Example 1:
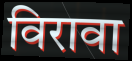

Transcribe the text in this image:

विरावा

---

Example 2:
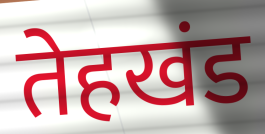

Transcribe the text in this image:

तेहखंड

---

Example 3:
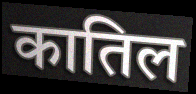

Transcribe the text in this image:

कातिल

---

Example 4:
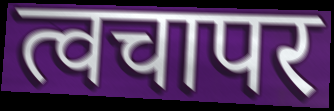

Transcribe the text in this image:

त्वचापर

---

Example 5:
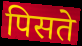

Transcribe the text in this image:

पिसते